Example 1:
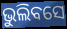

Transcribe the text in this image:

ଭୁଲିବସେ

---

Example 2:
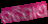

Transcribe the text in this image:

ଗଡିଯାଏ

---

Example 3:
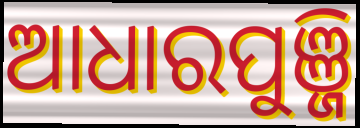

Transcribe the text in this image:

ଆଧାରପୁଞ୍ଜି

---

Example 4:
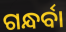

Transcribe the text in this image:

ଗନ୍ଧର୍ବା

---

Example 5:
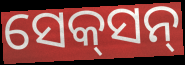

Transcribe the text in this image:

ସେକ୍‌ସନ୍